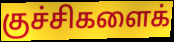
குச்சிகளைக்